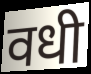
वधी